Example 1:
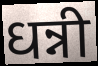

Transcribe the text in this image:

धन्नी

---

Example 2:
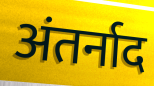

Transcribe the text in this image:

अंतर्नाद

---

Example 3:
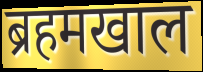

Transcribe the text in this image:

ब्रहमखाल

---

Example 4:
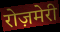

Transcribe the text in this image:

रोज़मेरी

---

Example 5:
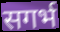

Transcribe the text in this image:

सगर्भ